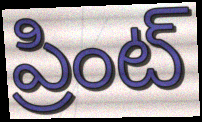
ప్రింట్